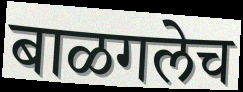
बाळगलेच